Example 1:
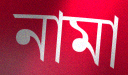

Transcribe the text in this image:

নামা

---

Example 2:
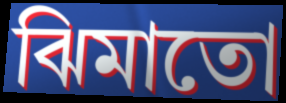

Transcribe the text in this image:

ঝিমাতো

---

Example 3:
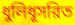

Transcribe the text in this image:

ধুলিধূসরিত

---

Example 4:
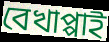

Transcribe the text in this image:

বেখাপ্পাই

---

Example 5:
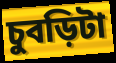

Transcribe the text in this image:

চুবড়িটা